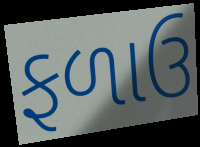
ફળાઉ